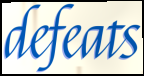
defeats